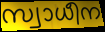
സ്വാധീന